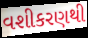
વશીકરણથી